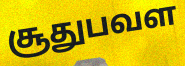
சூதுபவள